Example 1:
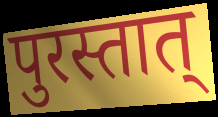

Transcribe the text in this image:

पुरस्तात्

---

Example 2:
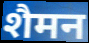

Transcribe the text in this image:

शैमन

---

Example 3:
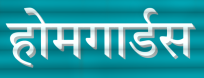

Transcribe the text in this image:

होमगार्डस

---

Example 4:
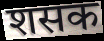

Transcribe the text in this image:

शसक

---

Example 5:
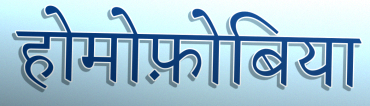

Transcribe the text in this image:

होमोफ़ोबिया